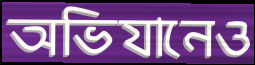
অভিযানেও